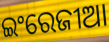
ଇଂରେଜୀଆ